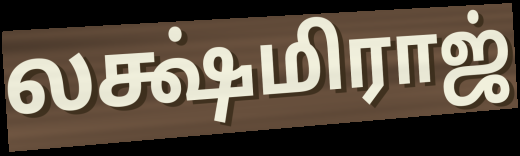
லக்ஷ்மிராஜ்